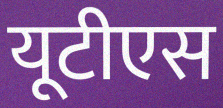
यूटीएस